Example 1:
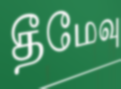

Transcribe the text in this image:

தீமேவு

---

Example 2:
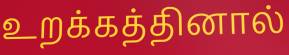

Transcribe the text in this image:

உறக்கத்தினால்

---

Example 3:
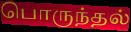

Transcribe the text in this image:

பொருந்தல்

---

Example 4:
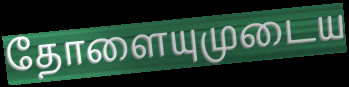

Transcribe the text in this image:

தோளையுமுடைய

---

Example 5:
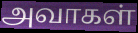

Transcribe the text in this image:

அவாகள்